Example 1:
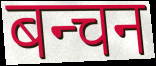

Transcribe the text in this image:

बन्चन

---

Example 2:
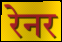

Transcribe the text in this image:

रेनर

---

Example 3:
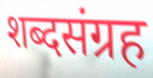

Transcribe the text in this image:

शब्दसंग्रह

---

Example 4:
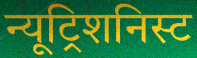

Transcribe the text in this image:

न्‍यूट्रिशनिस्‍ट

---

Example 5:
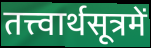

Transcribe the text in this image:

तत्त्वार्थसूत्रमें